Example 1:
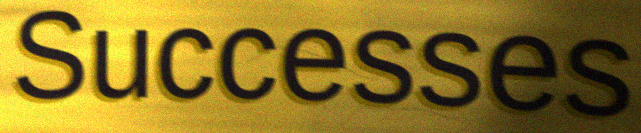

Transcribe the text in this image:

Successes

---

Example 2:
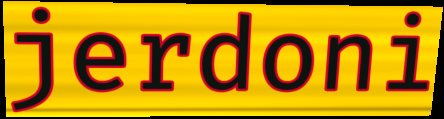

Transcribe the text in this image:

jerdoni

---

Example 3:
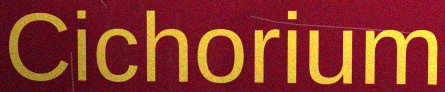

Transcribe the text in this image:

Cichorium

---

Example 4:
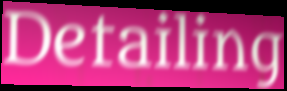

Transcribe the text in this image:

Detailing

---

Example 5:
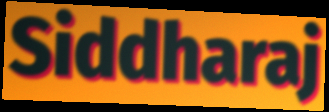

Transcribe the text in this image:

Siddharaj